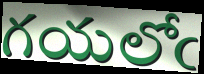
గయలోఁ